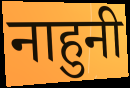
नाहुनी